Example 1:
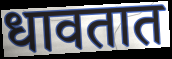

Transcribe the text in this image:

धावतात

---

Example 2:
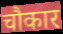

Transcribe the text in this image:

चौकार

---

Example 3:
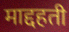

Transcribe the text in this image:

माद्दहती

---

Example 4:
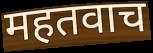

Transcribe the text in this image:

महतवाच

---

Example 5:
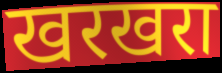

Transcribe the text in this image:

खरखरा